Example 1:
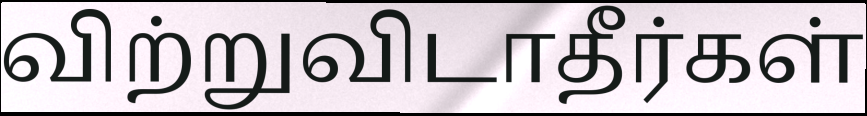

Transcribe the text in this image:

விற்றுவிடாதீர்கள்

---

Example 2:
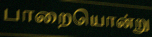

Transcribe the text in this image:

பாறையொன்று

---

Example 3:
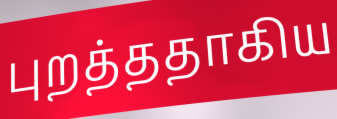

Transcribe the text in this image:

புறத்ததாகிய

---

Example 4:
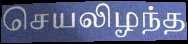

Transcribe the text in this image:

செயலிழந்த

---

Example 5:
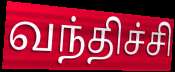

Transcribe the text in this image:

வந்திச்சி